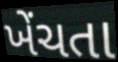
ખેંચતા